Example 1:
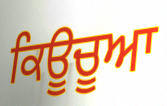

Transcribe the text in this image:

ਕਿਊਚੂਆ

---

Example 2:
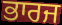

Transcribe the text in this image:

ਭਾਰਜ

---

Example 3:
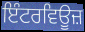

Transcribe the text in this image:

ਇੰਟਰਵਿਊਜ਼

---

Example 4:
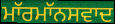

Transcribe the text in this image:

ਮਾੱਰਮਾੱਨਸਵਾਦ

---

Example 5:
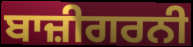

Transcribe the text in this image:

ਬਾਜ਼ੀਗਰਨੀ